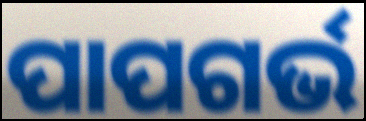
ପାପଗର୍ଭ